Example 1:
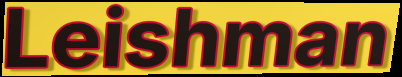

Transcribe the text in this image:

Leishman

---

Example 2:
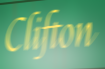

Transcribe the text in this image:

Clifton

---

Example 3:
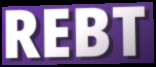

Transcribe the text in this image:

REBT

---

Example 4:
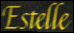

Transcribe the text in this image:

Estelle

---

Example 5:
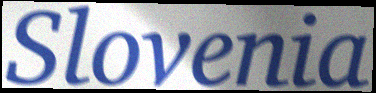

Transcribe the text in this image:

Slovenia